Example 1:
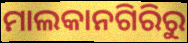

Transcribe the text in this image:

ମାଲକାନଗିରିରୁ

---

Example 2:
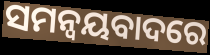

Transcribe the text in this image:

ସମନ୍ୱୟବାଦରେ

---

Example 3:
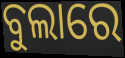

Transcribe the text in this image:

ବୁଲାରେ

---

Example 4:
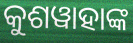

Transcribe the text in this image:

କୁଶୱାହାଙ୍କ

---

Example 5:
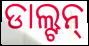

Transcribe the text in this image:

ଡାଲ୍ଟନ୍